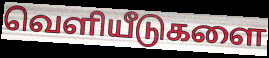
வெளியீடுகளை